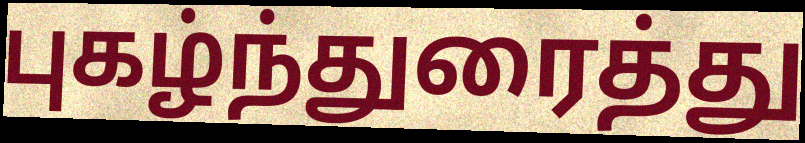
புகழ்ந்துரைத்து